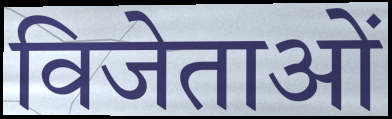
विजेताओं